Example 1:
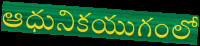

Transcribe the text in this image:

ఆధునికయుగంలో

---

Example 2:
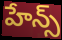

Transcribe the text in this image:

హేన్స్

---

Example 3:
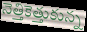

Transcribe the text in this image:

నెత్తికెత్తుకున్న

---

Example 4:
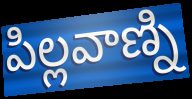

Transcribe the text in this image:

పిల్లవాణ్ని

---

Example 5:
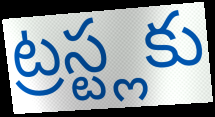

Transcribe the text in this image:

ట్రస్ట్లకు